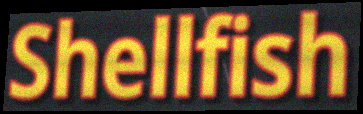
Shellfish